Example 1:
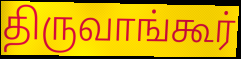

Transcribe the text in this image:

திருவாங்கூர்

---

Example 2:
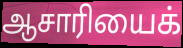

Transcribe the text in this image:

ஆசாரியைக்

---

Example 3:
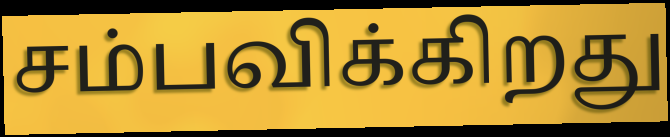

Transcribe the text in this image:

சம்பவிக்கிறது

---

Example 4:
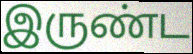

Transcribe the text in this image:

இருண்ட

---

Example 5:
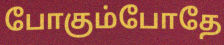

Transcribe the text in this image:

போகும்போதே